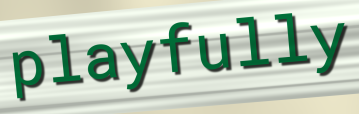
playfully